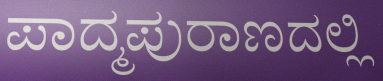
ಪಾದ್ಮಪುರಾಣದಲ್ಲಿ